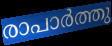
രാപാർത്തു